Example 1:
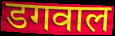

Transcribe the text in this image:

डगवाल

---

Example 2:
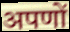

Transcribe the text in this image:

अपणों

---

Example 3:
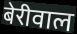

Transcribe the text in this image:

बेरीवाल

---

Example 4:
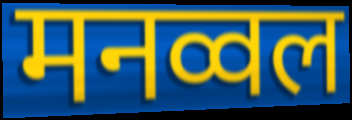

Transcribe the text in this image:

मनव्वल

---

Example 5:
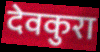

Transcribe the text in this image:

देवकुरा